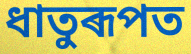
ধাতুৰূপত